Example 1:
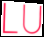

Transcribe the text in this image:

LU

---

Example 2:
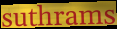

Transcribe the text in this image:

suthrams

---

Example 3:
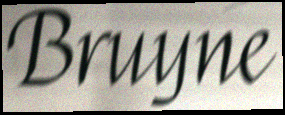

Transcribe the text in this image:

Bruyne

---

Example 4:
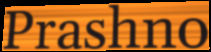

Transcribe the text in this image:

Prashno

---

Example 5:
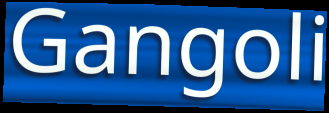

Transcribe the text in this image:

Gangoli